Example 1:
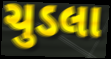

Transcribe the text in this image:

ચુડલા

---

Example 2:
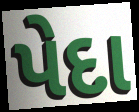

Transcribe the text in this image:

પેદા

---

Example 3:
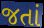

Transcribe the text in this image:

જતાં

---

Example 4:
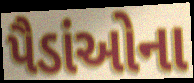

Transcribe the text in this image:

પૈડાંઓના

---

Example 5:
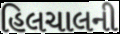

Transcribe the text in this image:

હિલચાલની